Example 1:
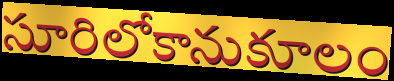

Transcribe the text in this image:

సూరిలోకానుకూలం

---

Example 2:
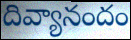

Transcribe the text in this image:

దివ్యానందం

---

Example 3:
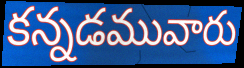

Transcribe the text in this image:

కన్నడమువారు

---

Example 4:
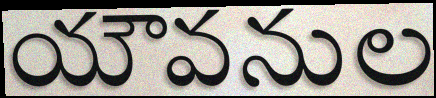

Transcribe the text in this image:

యౌవనుల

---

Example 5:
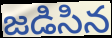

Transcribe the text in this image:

జడిసిన